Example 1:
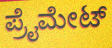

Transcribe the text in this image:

ಪ್ರೈಮೇಟ್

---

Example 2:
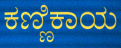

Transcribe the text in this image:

ಕಣ್ಣಿಕಾಯ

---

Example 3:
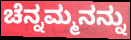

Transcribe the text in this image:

ಚೆನ್ನಮ್ಮನನ್ನು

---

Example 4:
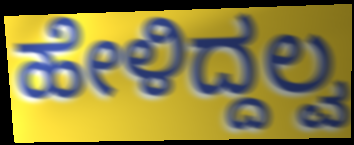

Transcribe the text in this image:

ಹೇಳಿದ್ದಲ್ವ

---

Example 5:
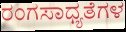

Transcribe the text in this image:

ರಂಗಸಾಧ್ಯತೆಗಳ